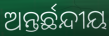
ଅନ୍ତର୍ଛନ୍ଦୀୟ